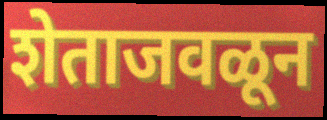
शेताजवळून